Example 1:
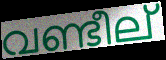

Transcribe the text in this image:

വണ്ടീല്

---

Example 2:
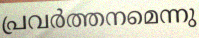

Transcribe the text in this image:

പ്രവർത്തനമെന്നു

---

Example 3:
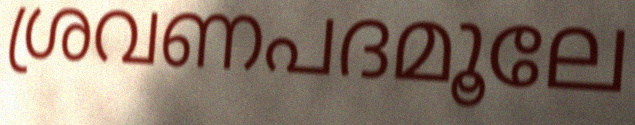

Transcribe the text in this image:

ശ്രവണപദമൂലേ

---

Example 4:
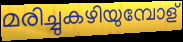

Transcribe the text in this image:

മരിച്ചുകഴിയുമ്പോള്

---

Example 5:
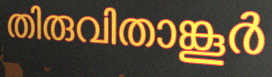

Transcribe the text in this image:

തിരുവിതാങ്കൂർ